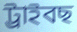
ট্ৰাইবছ